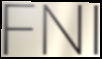
FNI